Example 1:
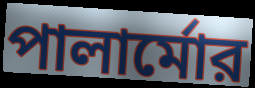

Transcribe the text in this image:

পালার্মোর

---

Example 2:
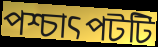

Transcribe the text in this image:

পশ্চাৎপটটি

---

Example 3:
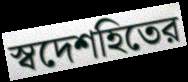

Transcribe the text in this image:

স্বদেশহিতের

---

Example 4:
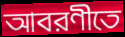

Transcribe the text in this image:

আবরণীতে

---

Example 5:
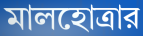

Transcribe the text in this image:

মালহোত্রার